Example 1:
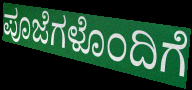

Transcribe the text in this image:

ಪೂಜೆಗಳೊಂದಿಗೆ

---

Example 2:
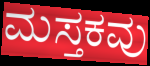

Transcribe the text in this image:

ಮಸ್ತಕವು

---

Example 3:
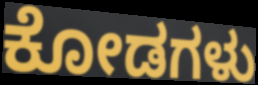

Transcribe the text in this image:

ಕೋಡಗಳು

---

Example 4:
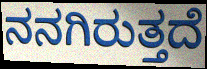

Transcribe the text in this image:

ನನಗಿರುತ್ತದೆ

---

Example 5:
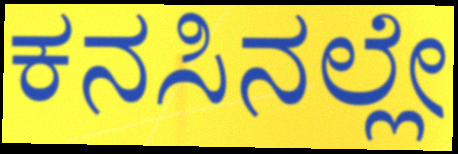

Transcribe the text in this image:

ಕನಸಿನಲ್ಲೇ